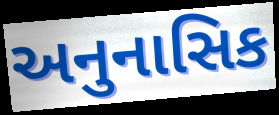
અનુનાસિક